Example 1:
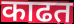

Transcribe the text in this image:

काढत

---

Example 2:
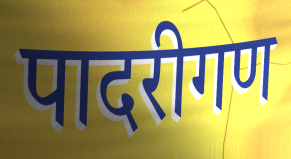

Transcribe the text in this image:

पादरीगण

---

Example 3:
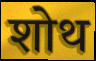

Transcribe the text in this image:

शोथ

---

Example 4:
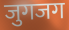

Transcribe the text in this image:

जुगजग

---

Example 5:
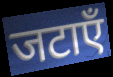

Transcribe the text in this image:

जटाएँ